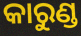
କାରୁଣ୍ଡ